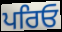
ਪਰਿਓ